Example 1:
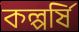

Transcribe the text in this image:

কল্পর্ষি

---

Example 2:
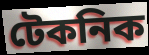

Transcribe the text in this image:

টেকনিক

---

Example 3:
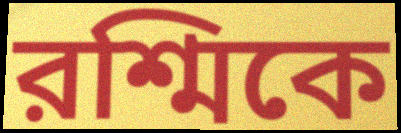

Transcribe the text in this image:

রশ্মিকে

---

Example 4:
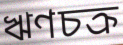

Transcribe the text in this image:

ঋণচক্র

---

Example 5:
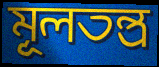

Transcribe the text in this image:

মূলতন্ত্র